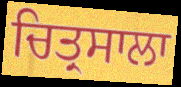
ਚਿਤ੍ਰਸਾਲਾ